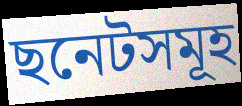
ছনেটসমূহ